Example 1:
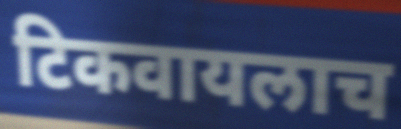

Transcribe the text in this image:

टिकवायलाच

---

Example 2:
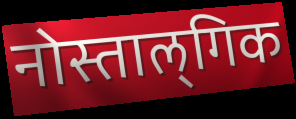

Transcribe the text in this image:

नोस्ताल्गिक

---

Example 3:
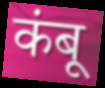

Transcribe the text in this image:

कंबू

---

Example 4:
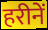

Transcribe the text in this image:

हरीनें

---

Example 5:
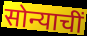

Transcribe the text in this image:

सोन्याचीं